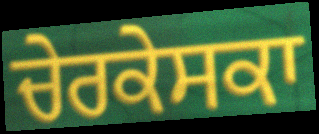
ਚੇਰਕੇਸਕਾ